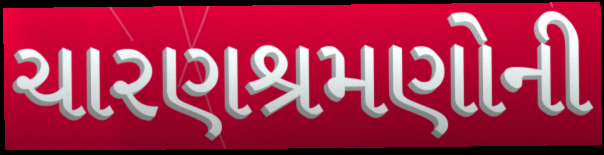
ચારણશ્રમણોની